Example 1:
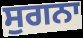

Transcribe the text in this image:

ਸੁਗਨਾ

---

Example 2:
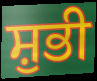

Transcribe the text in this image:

ਸ਼ੁਭੀ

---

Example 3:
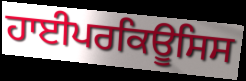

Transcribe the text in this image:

ਹਾਈਪਰਕਿਊਸਿਸ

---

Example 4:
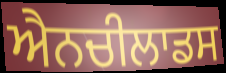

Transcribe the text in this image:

ਐਨਚੀਲਾਡਸ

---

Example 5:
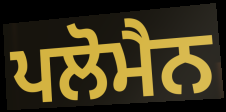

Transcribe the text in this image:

ਪਲੋਮੈਨ